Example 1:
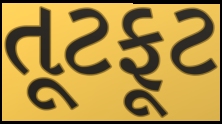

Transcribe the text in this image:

તૂટફૂટ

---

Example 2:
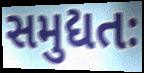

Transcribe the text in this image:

સમુદ્યતઃ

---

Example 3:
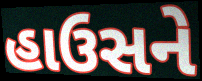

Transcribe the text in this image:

હાઉસને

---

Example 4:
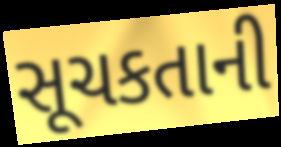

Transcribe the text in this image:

સૂચકતાની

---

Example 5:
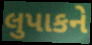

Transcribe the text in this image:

લુપાકને